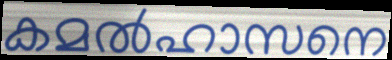
കമൽഹാസനെ